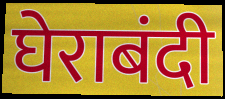
घेराबंदी